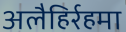
अलैहिर्रहमा